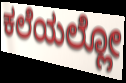
ಕಲೆಯಲ್ಲೋ